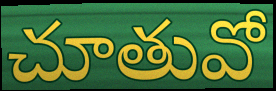
చూతువో